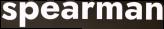
spearman